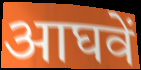
आघवें